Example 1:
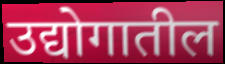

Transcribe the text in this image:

उद्योगातील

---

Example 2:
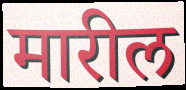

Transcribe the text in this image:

मारील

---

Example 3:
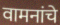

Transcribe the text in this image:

वामनांचे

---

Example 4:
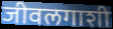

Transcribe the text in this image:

जीवलगाशी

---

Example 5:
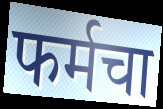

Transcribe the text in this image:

फर्मचा